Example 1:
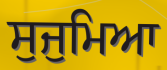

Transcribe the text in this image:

ਸੁਜੁਮਿਆ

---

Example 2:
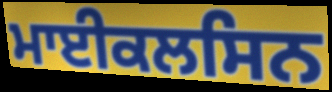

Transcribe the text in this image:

ਮਾਈਕਲਸਿਨ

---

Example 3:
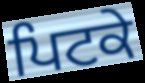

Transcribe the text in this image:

ਪਿਟਕੇ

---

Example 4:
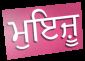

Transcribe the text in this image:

ਮੁਇਜ਼ੂ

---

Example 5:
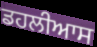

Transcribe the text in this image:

ਡਹਲੀਆਸ